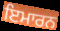
ਇਮਾਰਨ